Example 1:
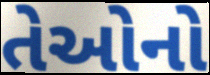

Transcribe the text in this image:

તેઓનો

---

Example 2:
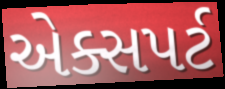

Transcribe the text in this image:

એક્સપર્ટ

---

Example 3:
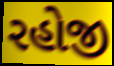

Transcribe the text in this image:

રહોજી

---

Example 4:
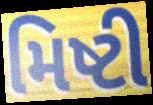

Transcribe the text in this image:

મિષ્ટી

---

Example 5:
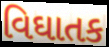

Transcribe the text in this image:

વિઘાતક